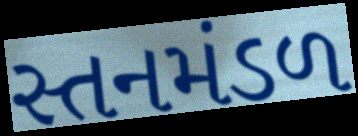
સ્તનમંડળ